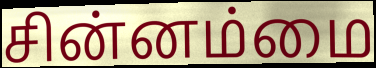
சின்னம்மை